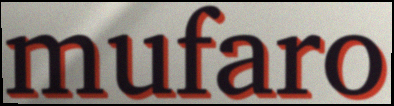
mufaro